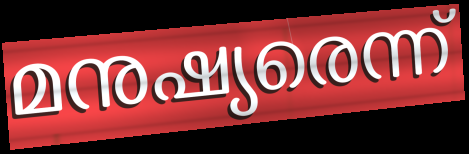
മനുഷ്യരെന്ന്